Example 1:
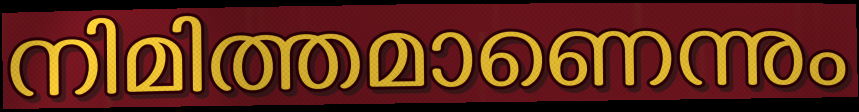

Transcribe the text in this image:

നിമിത്തമാണെന്നും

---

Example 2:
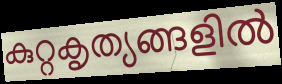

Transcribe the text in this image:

കുറ്റകൃത്യങ്ങളിൽ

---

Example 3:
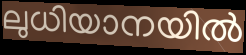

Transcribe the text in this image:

ലുധിയാനയിൽ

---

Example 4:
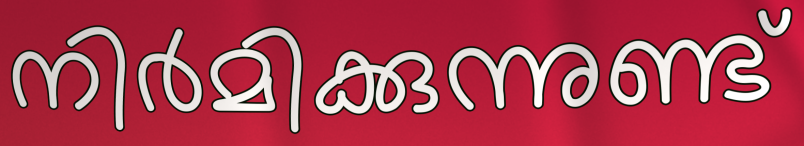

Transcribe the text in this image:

നിർമിക്കുന്നുണ്ട്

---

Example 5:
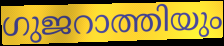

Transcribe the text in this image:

ഗുജറാത്തിയും